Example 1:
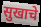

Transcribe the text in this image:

सुखाचे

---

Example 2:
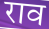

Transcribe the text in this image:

राव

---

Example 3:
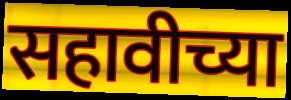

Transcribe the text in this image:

सहावीच्या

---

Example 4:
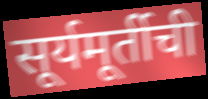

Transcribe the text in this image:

सूर्यमूर्तीची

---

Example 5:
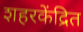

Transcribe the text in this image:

शहरकेंद्रित